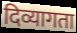
दिव्यागता